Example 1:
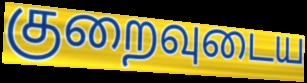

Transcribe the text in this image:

குறைவுடைய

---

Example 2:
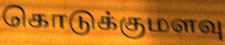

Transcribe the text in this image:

கொடுக்குமளவு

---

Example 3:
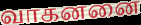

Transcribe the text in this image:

வாகனனை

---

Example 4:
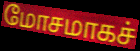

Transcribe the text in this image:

மோசமாகச்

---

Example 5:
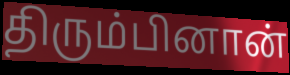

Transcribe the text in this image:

திரும்பினான்